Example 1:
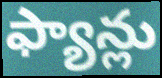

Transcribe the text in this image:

ఫ్యాన్లు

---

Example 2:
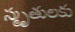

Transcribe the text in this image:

స్మృతులకు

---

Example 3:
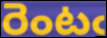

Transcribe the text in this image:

రెంటఁ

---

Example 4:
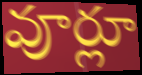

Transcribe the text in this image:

వూర్లూ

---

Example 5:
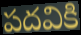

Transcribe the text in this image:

పదవికి